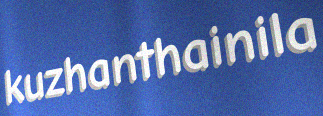
kuzhanthainila